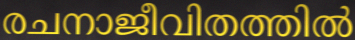
രചനാജീവിതത്തിൽ